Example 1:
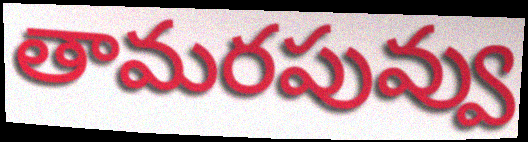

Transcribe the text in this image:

తామరపువ్వు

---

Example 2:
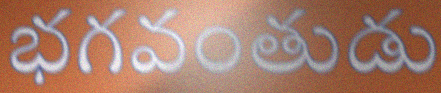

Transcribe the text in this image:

భగవంతుడు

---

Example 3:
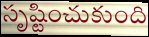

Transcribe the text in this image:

సృష్టించుకుంది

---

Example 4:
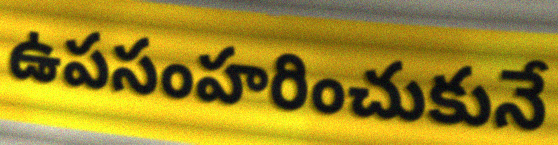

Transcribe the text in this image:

ఉపసంహరించుకునే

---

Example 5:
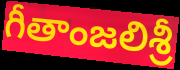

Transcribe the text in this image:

గీతాంజలిశ్రీ